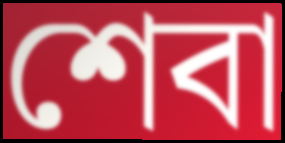
শেবা